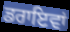
ਡਰਾਇਵਾਂ